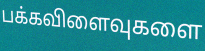
பக்கவிளைவுகளை